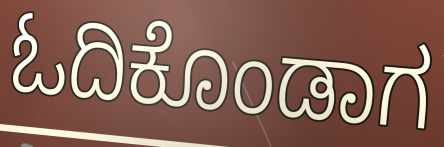
ಓದಿಕೊಂಡಾಗ